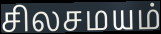
சிலசமயம்